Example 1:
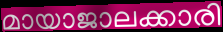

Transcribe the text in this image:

മായാജാലക്കാരി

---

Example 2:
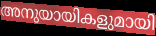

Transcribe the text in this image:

അനുയായികളുമായി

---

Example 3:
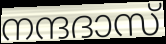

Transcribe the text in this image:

നന്ദദാസ്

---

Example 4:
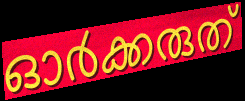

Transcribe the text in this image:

ഓർക്കരുത്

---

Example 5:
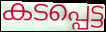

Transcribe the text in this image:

കടപ്പെട്ട